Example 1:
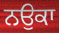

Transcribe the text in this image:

ਨਉਕਾ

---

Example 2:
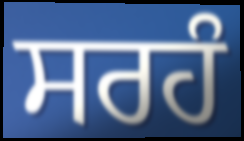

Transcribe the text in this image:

ਸਰਹੰ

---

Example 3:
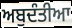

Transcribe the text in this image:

ਅਬੁਦੰਤੀਆ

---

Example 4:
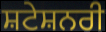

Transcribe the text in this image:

ਸ਼ਟੇਸ਼ਨਰੀ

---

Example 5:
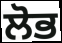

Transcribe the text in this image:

ਲੋਭ